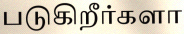
படுகிறீர்களா